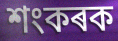
শংকৰক